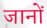
जानों